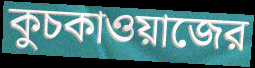
কুচকাওয়াজের